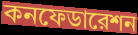
কনফেডারেশন